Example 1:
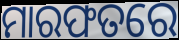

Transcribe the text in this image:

ମାରଫତରେ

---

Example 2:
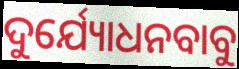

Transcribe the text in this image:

ଦୁର୍ଯ୍ୟୋଧନବାବୁ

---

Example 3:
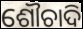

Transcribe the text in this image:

ଶୌଚାଦି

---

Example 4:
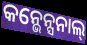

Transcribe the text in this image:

କନ୍ଭେନ୍ସନାଲ୍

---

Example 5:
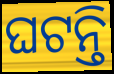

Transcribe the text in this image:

ଘଟନ୍ତି